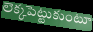
లెక్కపెట్టుకుంటూ